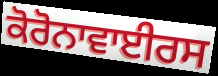
ਕੋਰੋਨਾਵਾਈਰਸ